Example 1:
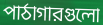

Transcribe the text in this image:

পাঠাগারগুলো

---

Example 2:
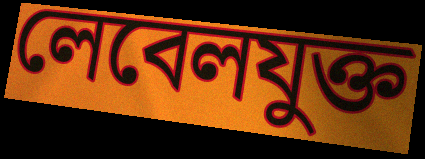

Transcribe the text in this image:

লেবেলযুক্ত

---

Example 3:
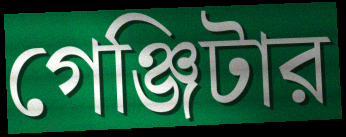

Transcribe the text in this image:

গেঞ্জিটার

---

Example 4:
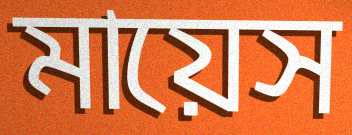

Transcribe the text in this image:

মায়েস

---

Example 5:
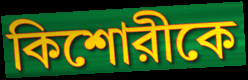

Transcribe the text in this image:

কিশোরীকে